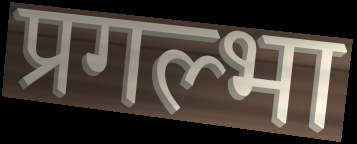
प्रगल्भा